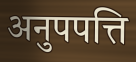
अनुपपत्ति